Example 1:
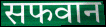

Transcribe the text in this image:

सफवान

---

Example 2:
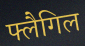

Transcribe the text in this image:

फ्लैगिल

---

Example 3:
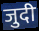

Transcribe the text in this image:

जुदी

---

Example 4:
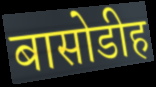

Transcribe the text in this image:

बासोडीह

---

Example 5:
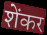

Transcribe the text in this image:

शेंकर